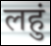
लहुं